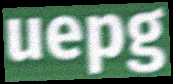
uepg